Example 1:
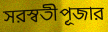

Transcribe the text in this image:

সরস্বতীপূজার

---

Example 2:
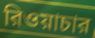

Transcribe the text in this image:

রিওয়াচার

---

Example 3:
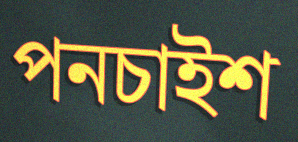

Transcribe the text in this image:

পনচাইশ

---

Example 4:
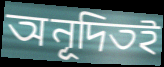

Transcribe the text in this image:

অনূদিতই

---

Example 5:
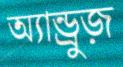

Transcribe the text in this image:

অ্যান্ড্রুজ়